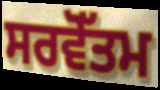
ਸਰਵੋੱਤਮ